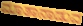
ಮಾತಾನಾಡುವ